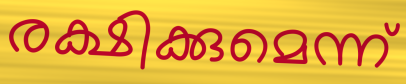
രക്ഷിക്കുമെന്ന്